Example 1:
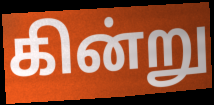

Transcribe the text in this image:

கின்று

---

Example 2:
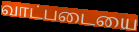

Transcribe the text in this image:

வாட்படையை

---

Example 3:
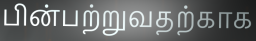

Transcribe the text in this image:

பின்பற்றுவதற்காக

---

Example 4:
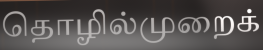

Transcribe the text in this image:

தொழில்முறைக்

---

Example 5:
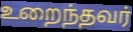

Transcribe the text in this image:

உறைந்தவர்